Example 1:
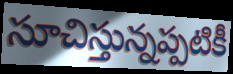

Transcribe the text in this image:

సూచిస్తున్నప్పటికీ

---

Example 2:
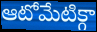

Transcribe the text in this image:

ఆటోమేటిక్గా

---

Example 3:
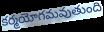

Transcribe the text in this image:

కర్మయోగమవుతుంది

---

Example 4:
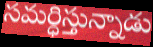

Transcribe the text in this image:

సమర్ధిస్తున్నాడు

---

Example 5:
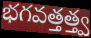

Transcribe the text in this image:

భగవత్తత్త్వ